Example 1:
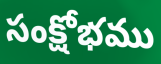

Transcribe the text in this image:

సంక్షోభము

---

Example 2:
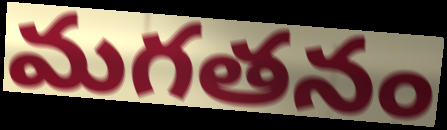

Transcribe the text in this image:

మగతనం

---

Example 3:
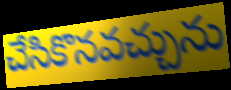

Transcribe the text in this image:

చేసికొనవచ్చును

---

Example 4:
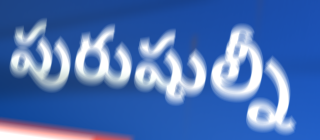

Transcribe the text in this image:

పురుషుల్నీ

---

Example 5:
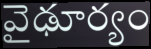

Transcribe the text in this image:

వైఢూర్యం